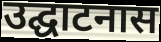
उद्घाटनास